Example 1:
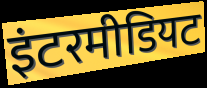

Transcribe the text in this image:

इंटरमीडियट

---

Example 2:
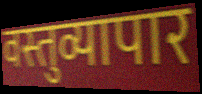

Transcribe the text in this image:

वस्तुव्यापार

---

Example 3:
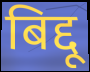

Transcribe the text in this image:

बिद्दू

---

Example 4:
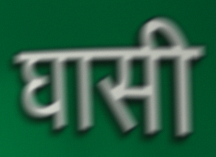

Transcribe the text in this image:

घासी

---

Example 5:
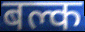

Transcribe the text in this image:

बल्क